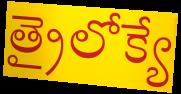
త్రైలోక్యే